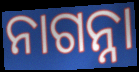
ନାଗନ୍ନା